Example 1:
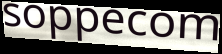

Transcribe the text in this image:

soppecom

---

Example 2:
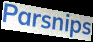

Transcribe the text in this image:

Parsnips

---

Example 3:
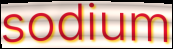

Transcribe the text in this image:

sodium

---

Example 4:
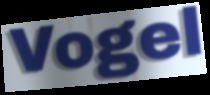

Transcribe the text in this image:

Vogel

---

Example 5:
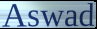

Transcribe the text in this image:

Aswad